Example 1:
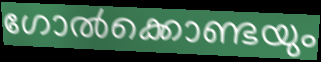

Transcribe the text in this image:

ഗോൽക്കൊണ്ടയും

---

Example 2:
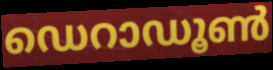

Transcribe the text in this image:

ഡെറാഡൂൺ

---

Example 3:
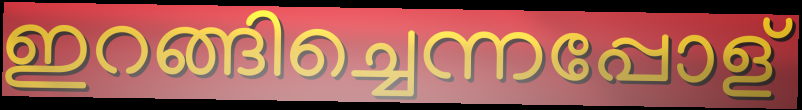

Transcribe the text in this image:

ഇറങ്ങിച്ചെന്നപ്പോള്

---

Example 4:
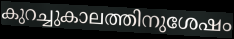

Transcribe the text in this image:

കുറച്ചുകാലത്തിനുശേഷം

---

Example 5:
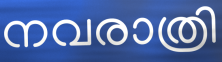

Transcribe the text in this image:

നവരാത്രി